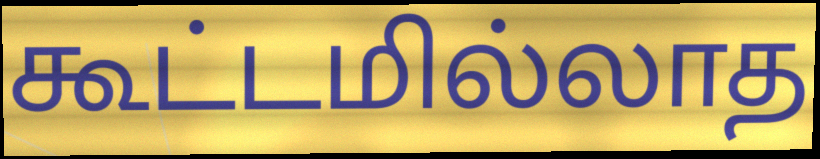
கூட்டமில்லாத